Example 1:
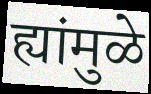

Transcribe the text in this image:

ह्यांमुळे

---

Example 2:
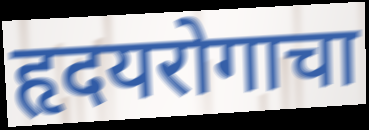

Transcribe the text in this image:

हृदयरोगाचा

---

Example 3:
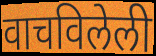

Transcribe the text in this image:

वाचविलेली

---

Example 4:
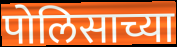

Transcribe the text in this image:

पोलिसाच्या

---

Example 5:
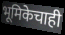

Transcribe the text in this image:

भूमिकेचाही